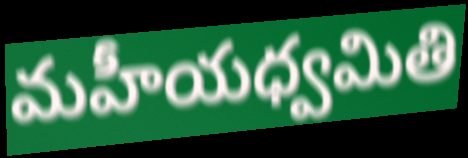
మహీయధ్వమితి